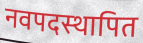
नवपदस्थापित